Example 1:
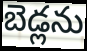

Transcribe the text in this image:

బెడ్లను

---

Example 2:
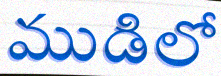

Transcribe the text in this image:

ముడిలో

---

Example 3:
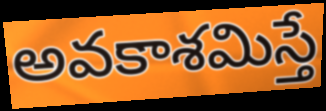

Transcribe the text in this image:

అవకాశమిస్తే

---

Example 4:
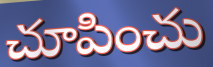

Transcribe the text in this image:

చూపించు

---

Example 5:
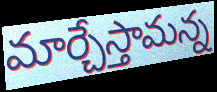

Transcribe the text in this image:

మార్చేస్తామన్న